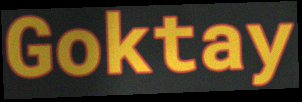
Goktay